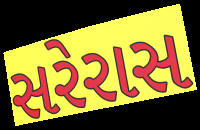
સરેરાસ